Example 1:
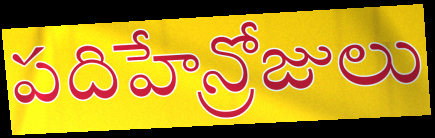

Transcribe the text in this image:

పదిహేన్రోజులు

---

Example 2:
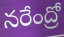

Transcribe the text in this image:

నరేంద్రో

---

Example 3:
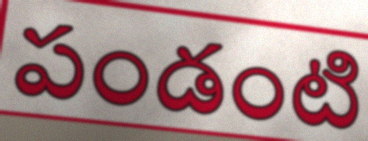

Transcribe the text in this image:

పండంటి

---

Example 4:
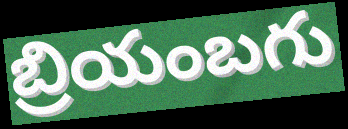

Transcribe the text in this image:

బ్రియంబగు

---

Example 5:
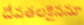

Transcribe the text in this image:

దేవతలకైననూ